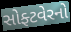
સોફ્ટવેરનો